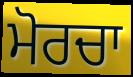
ਮੋਰਚਾ